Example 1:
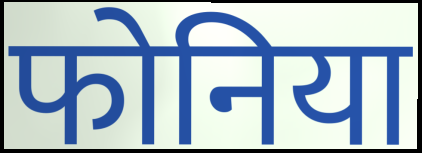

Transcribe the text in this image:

फोनिया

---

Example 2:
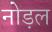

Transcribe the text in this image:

नोड़ल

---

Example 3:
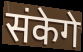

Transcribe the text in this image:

संकेगे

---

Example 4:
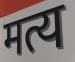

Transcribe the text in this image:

मत्य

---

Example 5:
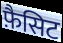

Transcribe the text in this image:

फ़ैसिट